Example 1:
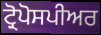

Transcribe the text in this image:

ਟ੍ਰੋਪੋਸਪੀਅਰ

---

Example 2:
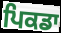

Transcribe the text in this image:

ਪਿਕਡਾ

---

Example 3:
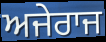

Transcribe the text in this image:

ਅਜੇਰਾਜ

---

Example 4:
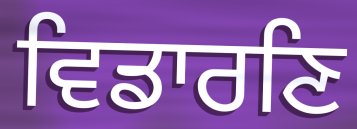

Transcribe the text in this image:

ਵਿਡਾਰਣਿ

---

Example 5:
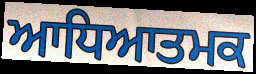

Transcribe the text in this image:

ਆਧਿਆਤਮਕ